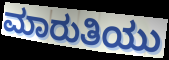
ಮಾರುತಿಯು